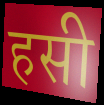
हसी